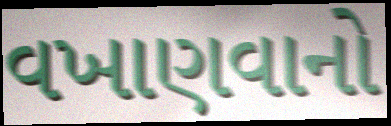
વખાણવાનો